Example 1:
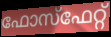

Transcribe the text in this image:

ഫോസ്ഫേറ്റ്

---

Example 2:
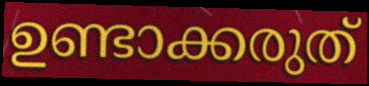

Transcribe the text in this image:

ഉണ്ടാക്കരുത്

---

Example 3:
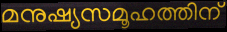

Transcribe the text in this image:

മനുഷ്യസമൂഹത്തിന്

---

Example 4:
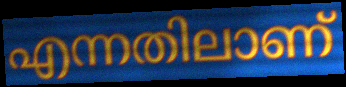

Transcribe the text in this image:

എന്നതിലാണ്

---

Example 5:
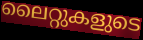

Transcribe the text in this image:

ലൈറ്റുകളുടെ